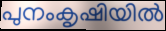
പുനംകൃഷിയിൽ